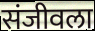
संजीवला